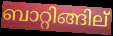
ബാറ്റിങ്ങില്